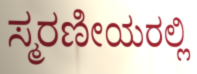
ಸ್ಮರಣೀಯರಲ್ಲಿ